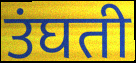
उंघती